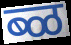
ब्ळ